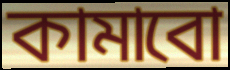
কামাবো